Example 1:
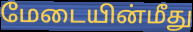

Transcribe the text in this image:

மேடையின்மீது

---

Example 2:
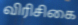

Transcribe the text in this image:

விரிசிகை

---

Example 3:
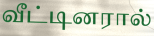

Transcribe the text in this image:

வீட்டினரால்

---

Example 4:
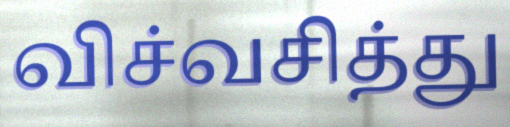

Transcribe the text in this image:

விச்வசித்து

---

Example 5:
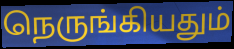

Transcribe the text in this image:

நெருங்கியதும்